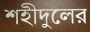
শহীদুলের